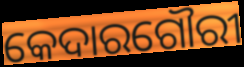
କେଦାରଗୌରୀ